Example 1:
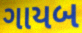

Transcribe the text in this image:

ગાયબ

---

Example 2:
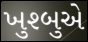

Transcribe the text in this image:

ખુશ્બુએ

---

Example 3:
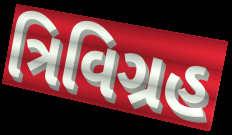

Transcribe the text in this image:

ત્રિવિગ્રહ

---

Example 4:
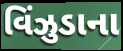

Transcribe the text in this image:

વિંઝુડાના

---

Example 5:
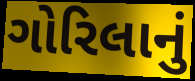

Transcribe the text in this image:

ગોરિલાનું